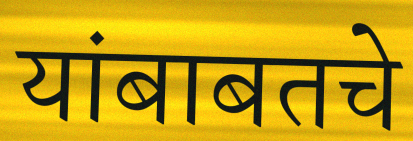
यांबाबतचे